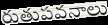
రుతుపవనాలు